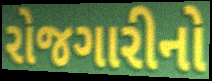
રોજગારીનો